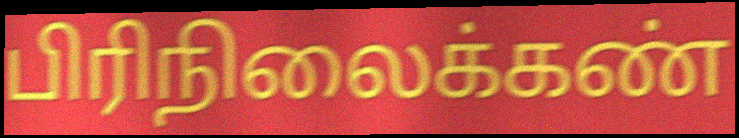
பிரிநிலைக்கண்